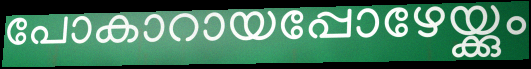
പോകാറായപ്പോഴേയ്ക്കും